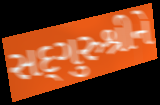
સદ્‌ગુરુશ્રીને